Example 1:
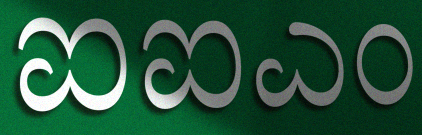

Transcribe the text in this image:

ಐಐಎಂ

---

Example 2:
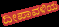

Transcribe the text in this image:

ದೀಪಾವಳಿಯ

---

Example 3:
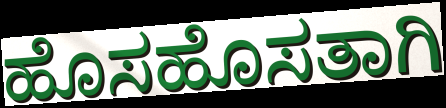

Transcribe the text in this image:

ಹೊಸಹೊಸತಾಗಿ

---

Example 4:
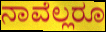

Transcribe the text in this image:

ನಾವೆಲ್ಲರೂ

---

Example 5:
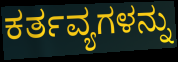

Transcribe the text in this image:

ಕರ್ತವ್ಯಗಳನ್ನು